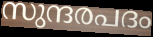
സുന്ദരപദം